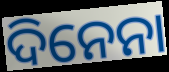
ଦିନେନା